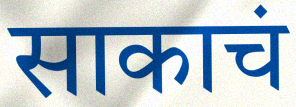
साकाचं